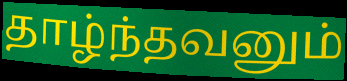
தாழ்ந்தவனும்